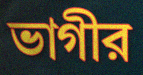
ভাগীর